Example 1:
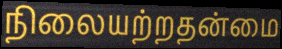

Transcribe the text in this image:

நிலையற்றதன்மை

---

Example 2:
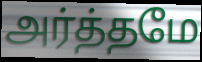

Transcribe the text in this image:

அர்த்தமே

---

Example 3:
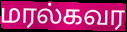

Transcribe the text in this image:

மரல்கவர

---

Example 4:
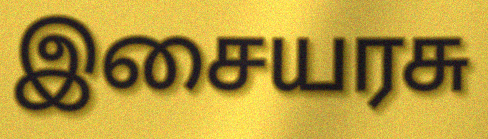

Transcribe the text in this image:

இசையரசு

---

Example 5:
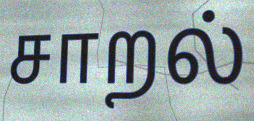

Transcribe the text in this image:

சாறல்